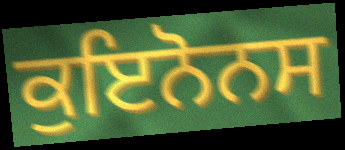
ਕੁਇਨੋਨਸ